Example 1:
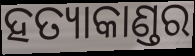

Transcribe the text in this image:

ହତ୍ୟାକାଣ୍ଡର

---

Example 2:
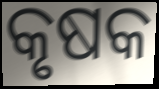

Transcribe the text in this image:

କୃଷକ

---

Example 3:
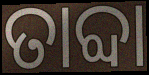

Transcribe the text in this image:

ତାବ୍ଦା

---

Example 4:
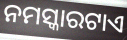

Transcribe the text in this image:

ନମସ୍କାରଟାଏ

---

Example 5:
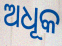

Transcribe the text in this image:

ଅଧୂକ